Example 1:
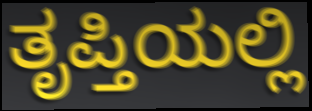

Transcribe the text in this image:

ತೃಪ್ತಿಯಲ್ಲಿ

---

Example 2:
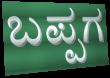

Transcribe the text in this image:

ಬಪ್ಪಗ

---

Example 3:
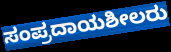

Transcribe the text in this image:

ಸಂಪ್ರದಾಯಶೀಲರು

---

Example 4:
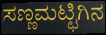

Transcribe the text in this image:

ಸಣ್ಣಮಟ್ಟಿಗಿನ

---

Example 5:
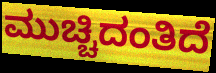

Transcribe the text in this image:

ಮುಚ್ಚಿದಂತಿದೆ